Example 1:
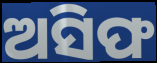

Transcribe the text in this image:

ଅସିଫ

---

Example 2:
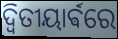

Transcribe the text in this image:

ଦ୍ଵିତୀୟାର୍ଵରେ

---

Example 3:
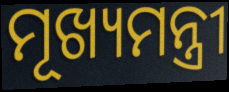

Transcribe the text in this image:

ମୂଖ୍ୟମନ୍ତ୍ରୀ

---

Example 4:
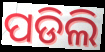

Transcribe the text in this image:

ପଡିଲି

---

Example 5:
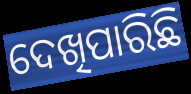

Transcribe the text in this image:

ଦେଖିପାରିଛି